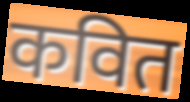
कवित